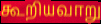
கூறியவாறு